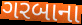
ગરબાના